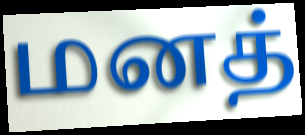
மனத்